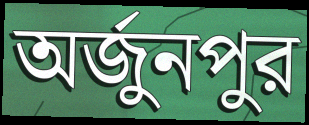
অর্জুনপুর